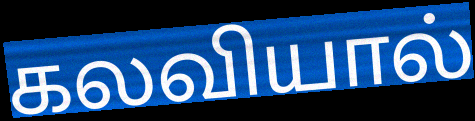
கலவியால்